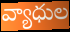
వ్యాధుల